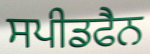
ਸਪੀਡਫੈਨ